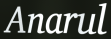
Anarul